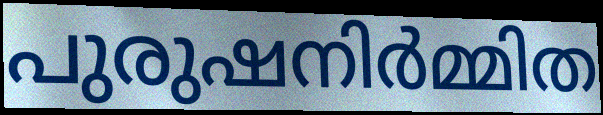
പുരുഷനിർമ്മിത